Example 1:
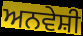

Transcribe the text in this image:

ਅਨਵੇਸ਼ੀ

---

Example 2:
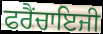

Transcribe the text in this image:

ਫਰੈਂਚਾਇਜੀ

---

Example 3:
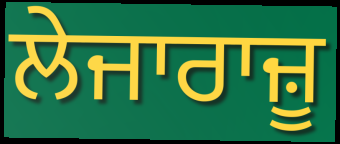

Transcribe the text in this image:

ਲੇਜਾਰਾਜ਼ੂ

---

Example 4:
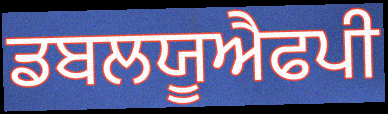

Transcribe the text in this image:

ਡਬਲਯੂਐਫਪੀ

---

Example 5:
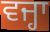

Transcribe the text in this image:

ਵਜ੍ਹਾ